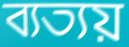
ব্যত্যয়